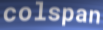
colspan